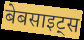
बेबसाइट्स